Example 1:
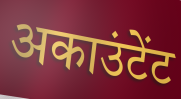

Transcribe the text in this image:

अकाउंटेंट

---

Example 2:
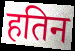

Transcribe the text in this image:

हतिन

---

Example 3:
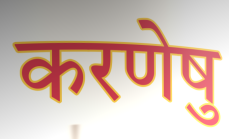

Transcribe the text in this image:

करणेषु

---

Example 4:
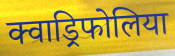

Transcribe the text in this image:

क्वाड्रिफोलिया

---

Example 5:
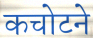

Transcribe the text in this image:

कचोटने